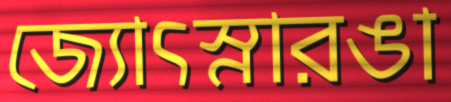
জ্যোৎস্নারঙা